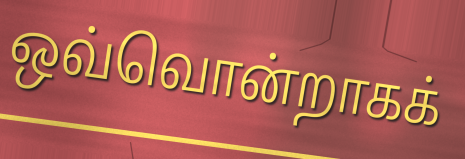
ஒவ்வொன்றாகக்